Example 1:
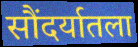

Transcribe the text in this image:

सौंदर्यातला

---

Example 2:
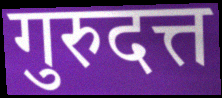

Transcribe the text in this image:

गुरुदत्त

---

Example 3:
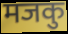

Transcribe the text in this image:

मजकु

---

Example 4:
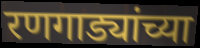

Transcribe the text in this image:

रणगाड्यांच्या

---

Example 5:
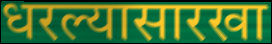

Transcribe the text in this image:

धरल्यासारखा